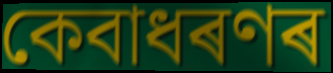
কেবাধৰণৰ